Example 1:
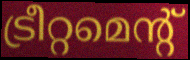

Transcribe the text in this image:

ട്രീറ്റമെന്റ്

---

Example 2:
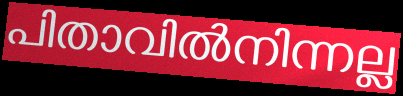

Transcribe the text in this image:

പിതാവിൽനിന്നല്ല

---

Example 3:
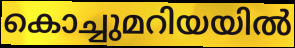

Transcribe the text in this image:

കൊച്ചുമറിയയിൽ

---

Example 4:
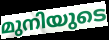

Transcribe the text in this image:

മുനിയുടെ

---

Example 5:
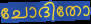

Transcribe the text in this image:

ചോദിതോ